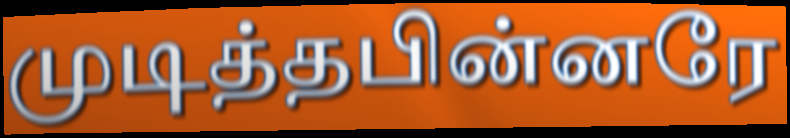
முடித்தபின்னரே